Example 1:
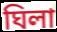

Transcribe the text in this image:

ঘিলা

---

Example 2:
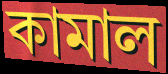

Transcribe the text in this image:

কামাল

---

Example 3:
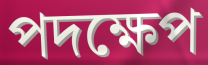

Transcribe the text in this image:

পদক্ষেপ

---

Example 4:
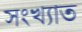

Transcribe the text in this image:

সংখ্যাত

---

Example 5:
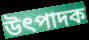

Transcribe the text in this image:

উৎপাদক